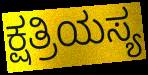
ಕ್ಷತ್ರಿಯಸ್ಯ